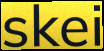
skei